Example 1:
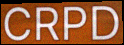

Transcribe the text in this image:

CRPD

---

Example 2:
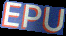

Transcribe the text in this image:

EPU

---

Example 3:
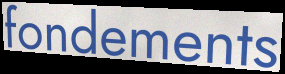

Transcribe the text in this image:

fondements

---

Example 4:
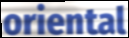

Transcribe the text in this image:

oriental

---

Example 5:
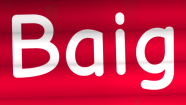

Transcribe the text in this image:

Baig